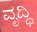
ವೃದ್ಧಿ